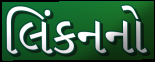
લિંકનનો